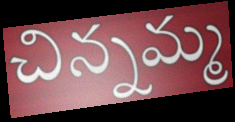
చిన్నమ్మ